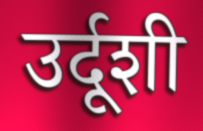
उर्दूशी